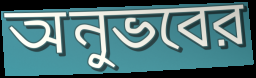
অনুভবের